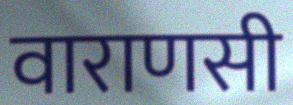
वाराणसी